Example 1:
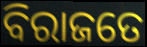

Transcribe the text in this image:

ବିରାଜତେ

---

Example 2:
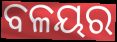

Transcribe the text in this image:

ବଳୟର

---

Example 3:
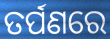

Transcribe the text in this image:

ତର୍ପଣରେ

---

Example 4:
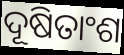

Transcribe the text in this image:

ଦୂଷିତାଂଶ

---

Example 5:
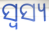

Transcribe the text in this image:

ସ୍ଵସ୍ଯ